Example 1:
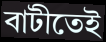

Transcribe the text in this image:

বাটীতেই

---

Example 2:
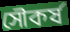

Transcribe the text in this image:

সৌকর্ষ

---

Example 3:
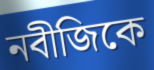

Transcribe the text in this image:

নবীজিকে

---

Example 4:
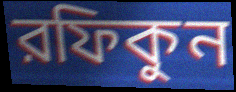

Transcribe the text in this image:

রফিকুন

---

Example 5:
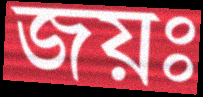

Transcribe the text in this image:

জয়ঃ